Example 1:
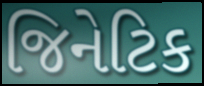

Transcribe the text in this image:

જિનેટિક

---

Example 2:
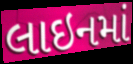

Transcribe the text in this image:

લાઇનમાં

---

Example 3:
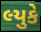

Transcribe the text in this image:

લ્યુકે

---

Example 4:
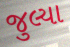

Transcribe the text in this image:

જુલ્યા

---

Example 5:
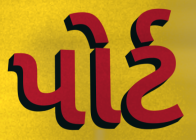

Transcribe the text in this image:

પોર્ટ